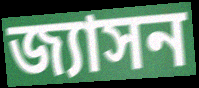
জ্যাসন